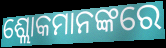
ଶ୍ଲୋକମାନଙ୍କରେ